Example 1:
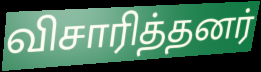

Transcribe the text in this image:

விசாரித்தனர்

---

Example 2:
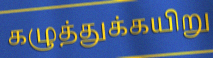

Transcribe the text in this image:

கழுத்துக்கயிறு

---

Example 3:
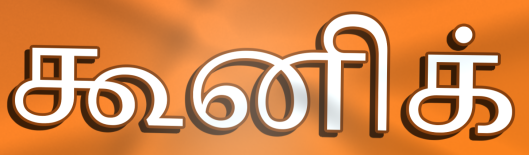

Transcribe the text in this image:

கூனிக்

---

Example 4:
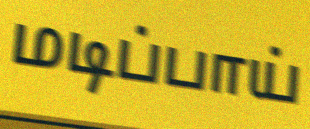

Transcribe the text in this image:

மடிப்பாய்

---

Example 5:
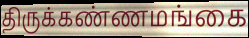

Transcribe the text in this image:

திருக்கண்ணமங்கை